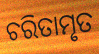
ଚରିତାମୃତ